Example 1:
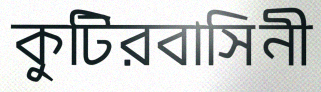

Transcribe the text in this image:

কুটিরবাসিনী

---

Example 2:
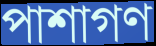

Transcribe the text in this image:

পাশাগণ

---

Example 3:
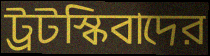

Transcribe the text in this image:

ট্রটস্কিবাদের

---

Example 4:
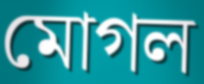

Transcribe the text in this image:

মোগল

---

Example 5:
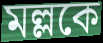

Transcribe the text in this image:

মল্লকে